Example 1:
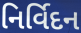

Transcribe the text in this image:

નિર્વિદન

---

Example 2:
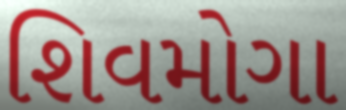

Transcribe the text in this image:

શિવમોગા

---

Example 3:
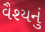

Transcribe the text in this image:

વૈશ્યનું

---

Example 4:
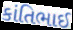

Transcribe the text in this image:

કાંતિભાઈ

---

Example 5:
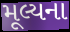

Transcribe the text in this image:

મૂલ્યના